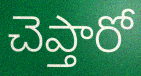
చెప్తారో